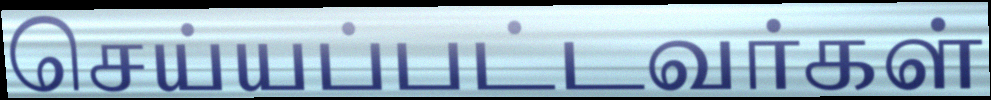
செய்யப்பட்டவர்கள்